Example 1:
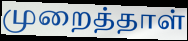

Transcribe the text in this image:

முறைத்தாள்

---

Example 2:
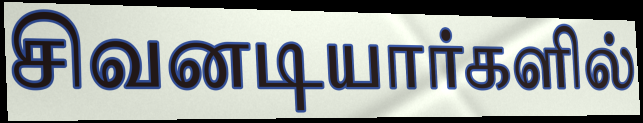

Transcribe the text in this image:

சிவனடியார்களில்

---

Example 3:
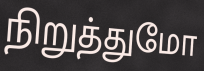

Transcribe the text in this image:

நிறுத்துமோ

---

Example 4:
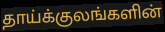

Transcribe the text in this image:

தாய்க்குலங்களின்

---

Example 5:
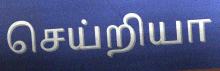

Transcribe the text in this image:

செய்றியா